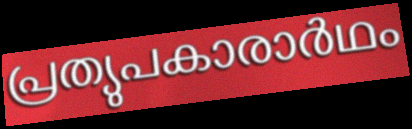
പ്രത്യുപകാരാർഥം